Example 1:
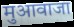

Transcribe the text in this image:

मुआवाजा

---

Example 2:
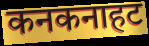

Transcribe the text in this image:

कनकनाहट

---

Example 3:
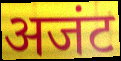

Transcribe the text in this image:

अजंट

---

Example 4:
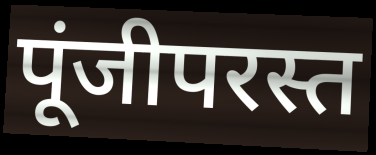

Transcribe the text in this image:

पूंजीपरस्त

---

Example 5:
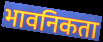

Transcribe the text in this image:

भावनिकता